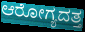
ಆರೋಗ್ಯದತ್ತ